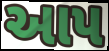
આપ